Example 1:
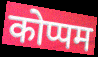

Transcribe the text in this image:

कोप्पम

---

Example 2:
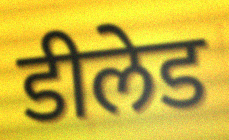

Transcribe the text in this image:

डीलेड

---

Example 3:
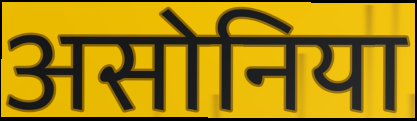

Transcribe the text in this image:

असोनिया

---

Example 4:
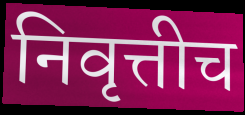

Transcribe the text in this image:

निवृत्तीच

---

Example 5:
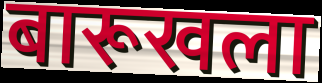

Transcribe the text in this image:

बारूखला